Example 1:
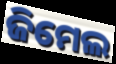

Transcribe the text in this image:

ଜିମେଲ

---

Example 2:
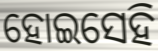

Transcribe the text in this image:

ହୋଇସେହି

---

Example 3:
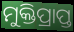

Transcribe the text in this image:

ମୁକ୍ତିପ୍ରାପ୍ତ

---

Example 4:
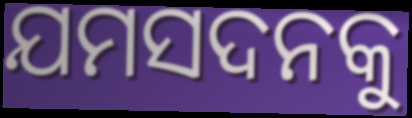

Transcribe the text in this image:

ଯମସଦନକୁ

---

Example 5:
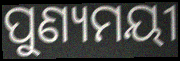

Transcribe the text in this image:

ପୁଣ୍ୟମୟୀ